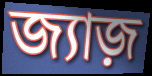
জ্যাজ়